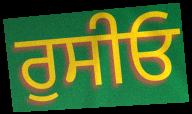
ਰੁਸੀਓ